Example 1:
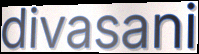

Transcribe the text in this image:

divasani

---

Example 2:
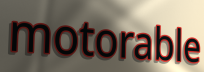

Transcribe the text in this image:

motorable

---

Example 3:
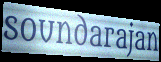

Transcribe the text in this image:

soundarajan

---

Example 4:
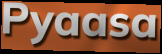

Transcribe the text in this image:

Pyaasa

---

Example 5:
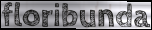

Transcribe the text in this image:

floribunda